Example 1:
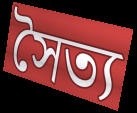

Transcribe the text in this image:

সৈত্য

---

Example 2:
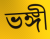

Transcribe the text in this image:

ভঙ্গী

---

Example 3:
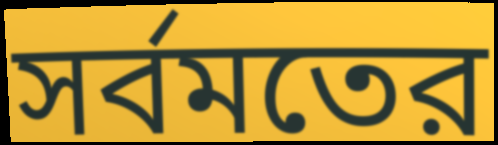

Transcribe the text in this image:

সর্বমতের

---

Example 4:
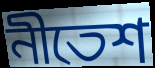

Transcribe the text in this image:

নীতেশ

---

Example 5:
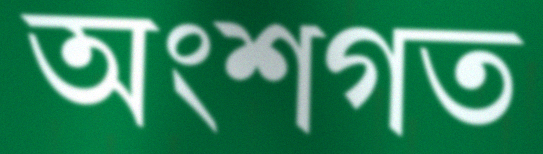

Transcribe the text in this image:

অংশগত